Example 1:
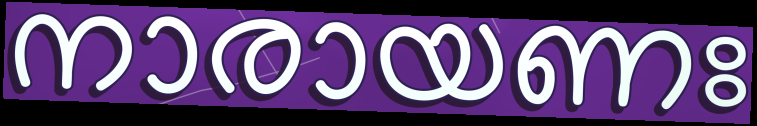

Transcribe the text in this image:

നാരായണഃ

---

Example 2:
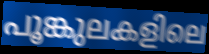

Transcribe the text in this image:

പൂങ്കുലകളിലെ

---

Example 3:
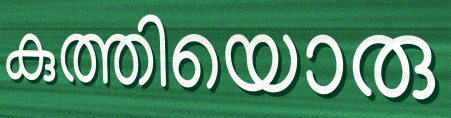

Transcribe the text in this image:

കുത്തിയൊരു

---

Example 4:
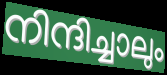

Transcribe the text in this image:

നിന്ദിച്ചാലും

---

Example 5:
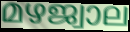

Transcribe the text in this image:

മഴജ്വാല